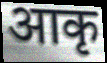
आकृ